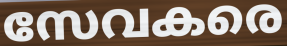
സേവകരെ